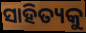
ସାହିତ୍ୟକୁ